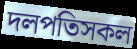
দলপতিসকল